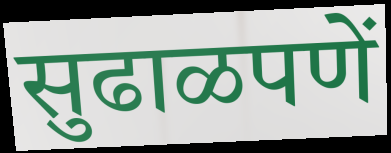
सुढाळपणें